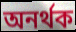
অনর্থক